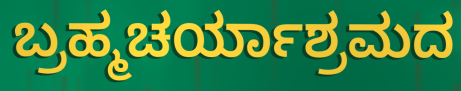
ಬ್ರಹ್ಮಚರ್ಯಾಶ್ರಮದ